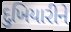
દુખિયારીને